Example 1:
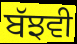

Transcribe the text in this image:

ਬੱਝਵੀ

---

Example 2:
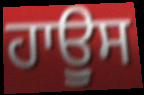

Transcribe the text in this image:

ਹਾਊੁਸ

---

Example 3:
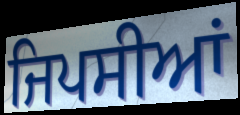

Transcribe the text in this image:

ਜਿਪਸੀਆਂ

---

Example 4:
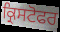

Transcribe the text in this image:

ਕ੍ਰਿਸਟੋਫਰ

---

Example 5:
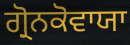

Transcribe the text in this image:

ਗ੍ਰੋਨਕੋਵਾਯਾ